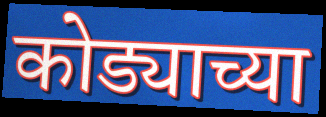
कोड्याच्या